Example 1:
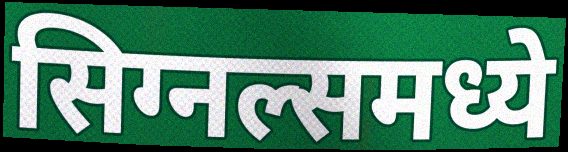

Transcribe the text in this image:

सिग्नल्समध्ये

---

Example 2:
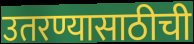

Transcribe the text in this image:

उतरण्यासाठीची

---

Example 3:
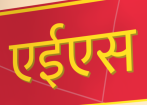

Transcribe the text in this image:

एईएस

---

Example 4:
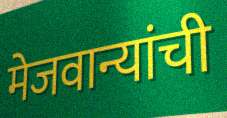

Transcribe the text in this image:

मेजवान्यांची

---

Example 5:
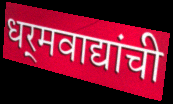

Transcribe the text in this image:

धर्मवाद्यांची